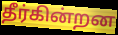
தீர்கின்றன